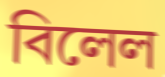
বিলেল